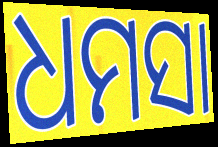
ଧମସା